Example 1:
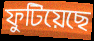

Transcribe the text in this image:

ফুটিয়েছে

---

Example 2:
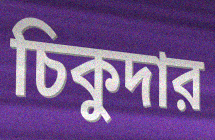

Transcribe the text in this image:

চিকুদার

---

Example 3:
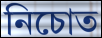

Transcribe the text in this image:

নিচোত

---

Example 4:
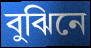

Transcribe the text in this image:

বুঝিনে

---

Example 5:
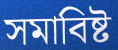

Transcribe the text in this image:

সমাবিষ্ট